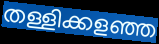
തള്ളിക്കളഞ്ഞ